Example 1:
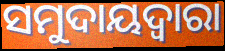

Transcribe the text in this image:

ସମୁଦାୟଦ୍ୱାରା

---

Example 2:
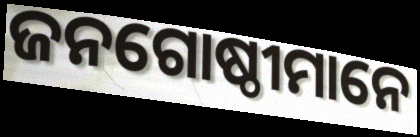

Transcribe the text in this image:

ଜନଗୋଷ୍ଠୀମାନେ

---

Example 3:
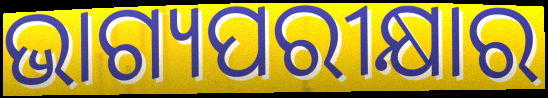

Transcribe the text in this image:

ଭାଗ୍ୟପରୀକ୍ଷାର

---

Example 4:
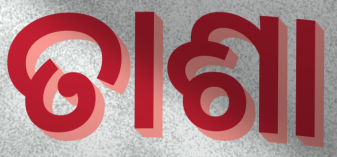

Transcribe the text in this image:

ତାଶା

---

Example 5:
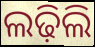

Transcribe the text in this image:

ଲଢ଼ିଲି